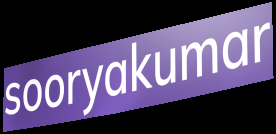
sooryakumar